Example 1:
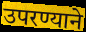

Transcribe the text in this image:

उपरण्याने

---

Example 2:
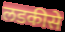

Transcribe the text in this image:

लडकीसे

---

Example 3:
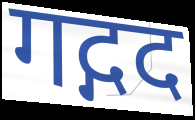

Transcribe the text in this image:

गद्गद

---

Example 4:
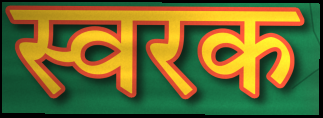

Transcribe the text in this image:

स्वरक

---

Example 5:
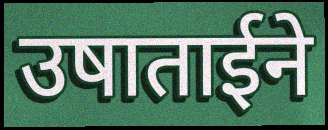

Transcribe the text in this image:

उषाताईने